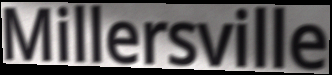
Millersville